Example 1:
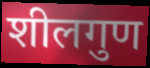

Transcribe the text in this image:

शीलगुण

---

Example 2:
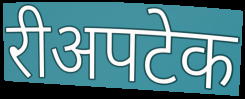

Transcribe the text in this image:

रीअपटेक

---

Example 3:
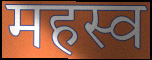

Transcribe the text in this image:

महस्व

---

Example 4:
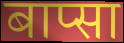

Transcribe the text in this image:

बाप्सा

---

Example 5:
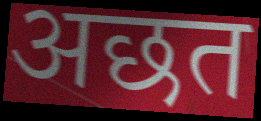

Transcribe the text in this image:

अछत